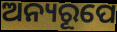
ଅନ୍ୟରୂପେ